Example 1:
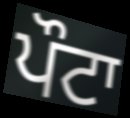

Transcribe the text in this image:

ਪੌਟਾ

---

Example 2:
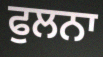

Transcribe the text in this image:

ਫੁਲਨਾ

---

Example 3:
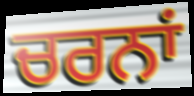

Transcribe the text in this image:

ਚਰਨਾਂ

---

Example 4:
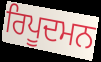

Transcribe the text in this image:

ਰਿਪੂਦਮਨ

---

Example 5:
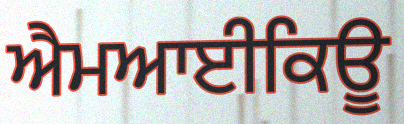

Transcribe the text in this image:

ਐਮਆਈਕਿਊ